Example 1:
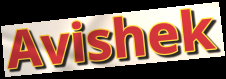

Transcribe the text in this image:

Avishek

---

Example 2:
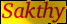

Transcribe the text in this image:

Sakthy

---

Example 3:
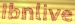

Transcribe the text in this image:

Ibnlive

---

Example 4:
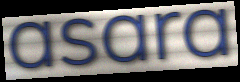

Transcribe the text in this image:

asara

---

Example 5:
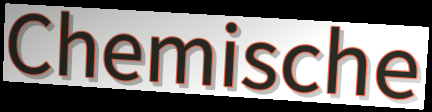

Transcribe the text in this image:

Chemische